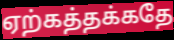
ஏற்கத்தக்கதே